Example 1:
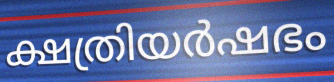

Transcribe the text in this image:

ക്ഷത്രിയർഷഭം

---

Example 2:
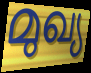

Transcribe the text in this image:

മുഖ്യ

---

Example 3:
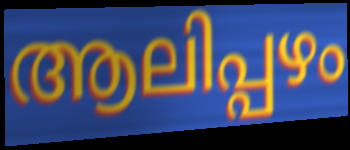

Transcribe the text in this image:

ആലിപ്പഴം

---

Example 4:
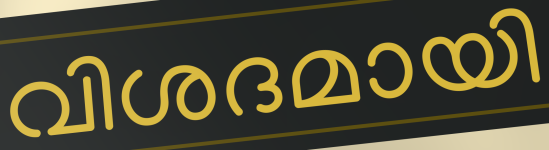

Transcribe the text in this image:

വിശദമായി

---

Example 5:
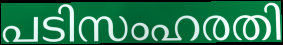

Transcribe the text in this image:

പടിസംഹരതി